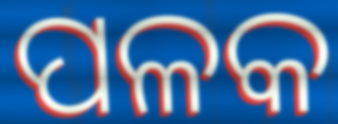
ପଳକ